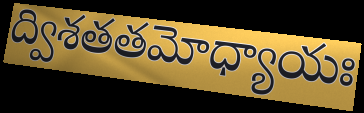
ద్విశతతమోధ్యాయః